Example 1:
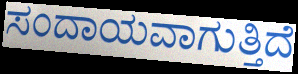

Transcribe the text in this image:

ಸಂದಾಯವಾಗುತ್ತಿದೆ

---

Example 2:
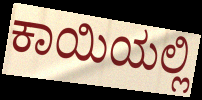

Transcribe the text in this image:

ಕಾಯಿಯಲ್ಲಿ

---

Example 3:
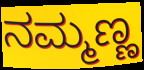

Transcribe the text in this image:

ನಮ್ಮಣ್ಣ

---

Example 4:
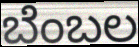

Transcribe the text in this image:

ಬೆಂಬಲ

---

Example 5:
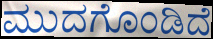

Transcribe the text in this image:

ಮುದಗೊಂಡಿದೆ